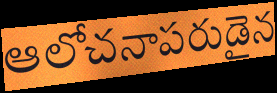
ఆలోచనాపరుడైన